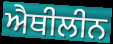
ਐਥੀਲੀਨ